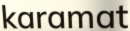
karamat